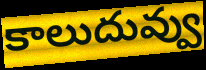
కాలుదువ్వు